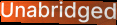
Unabridged